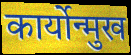
कार्योन्मुख